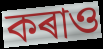
কৰাও